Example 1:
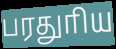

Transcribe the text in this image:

பரதுரிய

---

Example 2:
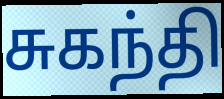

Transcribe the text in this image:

சுகந்தி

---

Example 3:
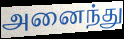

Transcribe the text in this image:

அனைந்து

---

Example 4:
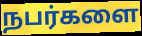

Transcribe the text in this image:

நபர்களை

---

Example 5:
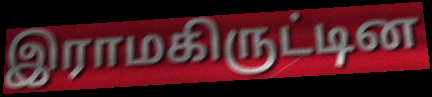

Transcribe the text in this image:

இராமகிருட்டின